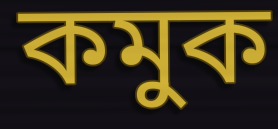
কমুক